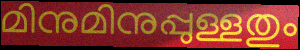
മിനുമിനുപ്പുള്ളതും